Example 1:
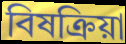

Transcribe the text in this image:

বিষক্ৰিয়া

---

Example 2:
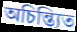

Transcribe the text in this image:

অচিন্ত্যিত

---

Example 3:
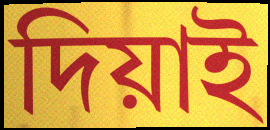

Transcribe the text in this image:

দিয়াই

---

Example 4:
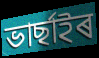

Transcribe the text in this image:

ভাৰ্ছাইৰ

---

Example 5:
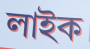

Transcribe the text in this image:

লাইক